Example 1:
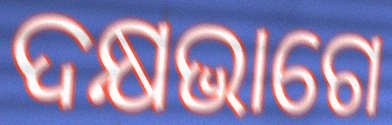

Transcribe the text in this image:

ଦକ୍ଷଭାଗେ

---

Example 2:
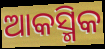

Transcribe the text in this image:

ଆକସ୍ମିକ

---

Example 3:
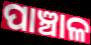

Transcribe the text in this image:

ପାଞ୍ଚାଳ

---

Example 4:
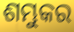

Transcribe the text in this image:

ଶମ୍ଭୁକର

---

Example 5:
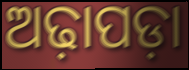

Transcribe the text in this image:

ଅଢ଼ାପଡ଼ା